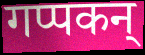
गप्पकन्